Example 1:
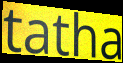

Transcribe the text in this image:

tatha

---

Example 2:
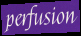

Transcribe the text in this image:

perfusion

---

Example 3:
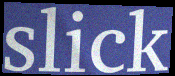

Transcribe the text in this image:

slick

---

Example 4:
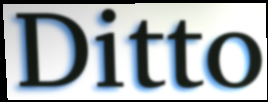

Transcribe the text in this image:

Ditto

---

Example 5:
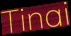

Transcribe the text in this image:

Tinai